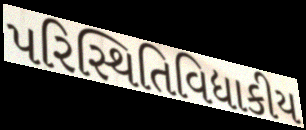
પરિસ્થિતિવિદ્યાકીય